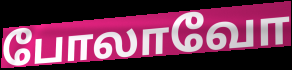
போலாவோ